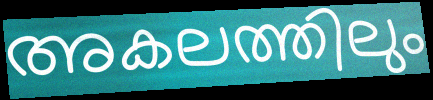
അകലത്തിലും